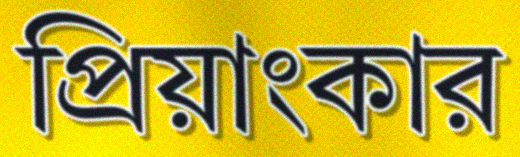
প্রিয়াংকার